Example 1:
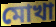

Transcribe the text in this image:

মোখা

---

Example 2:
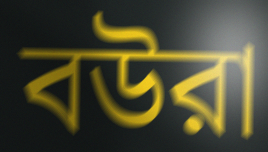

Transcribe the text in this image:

বউরা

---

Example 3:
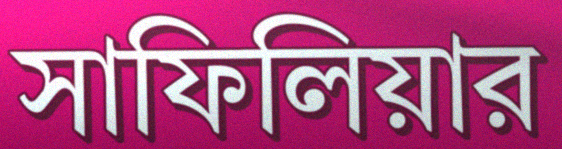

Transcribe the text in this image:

সাফিলিয়ার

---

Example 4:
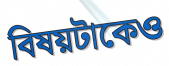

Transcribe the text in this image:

বিষয়টাকেও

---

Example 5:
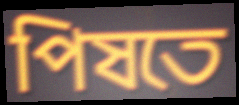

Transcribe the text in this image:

পিষতে